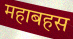
महाबहस